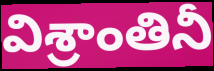
విశ్రాంతినీ